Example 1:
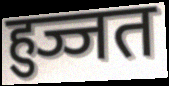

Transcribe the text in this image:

हुज्जत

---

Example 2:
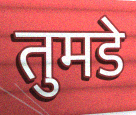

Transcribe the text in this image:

तुमडे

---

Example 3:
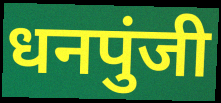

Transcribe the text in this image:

धनपुंजी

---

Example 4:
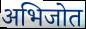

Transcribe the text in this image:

अभिजोत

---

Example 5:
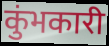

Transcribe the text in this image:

कुंभकारी